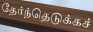
தேர்ந்தெடுக்கச்